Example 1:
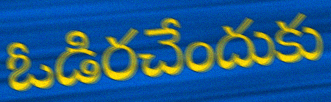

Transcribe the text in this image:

ఓడిరచేందుకు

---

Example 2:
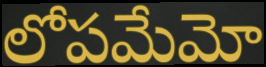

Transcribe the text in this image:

లోపమేమో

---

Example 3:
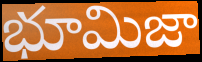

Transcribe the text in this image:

భూమిజా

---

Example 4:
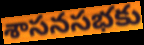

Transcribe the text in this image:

శాసనసభకు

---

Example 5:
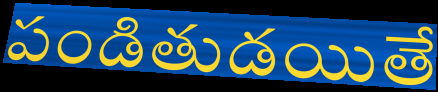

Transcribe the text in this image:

పండితుడయితే